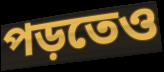
পড়তেও